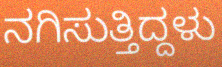
ನಗಿಸುತ್ತಿದ್ದಳು